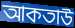
আকতাউ